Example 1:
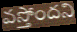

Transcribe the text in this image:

వస్తోందని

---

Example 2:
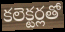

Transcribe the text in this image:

కలెక్టర్లతో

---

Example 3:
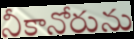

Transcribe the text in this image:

నీకానోరును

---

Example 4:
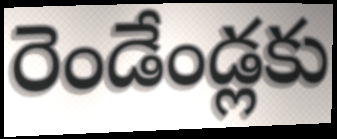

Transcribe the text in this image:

రెండేండ్లకు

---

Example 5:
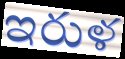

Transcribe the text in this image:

ఇరుళ